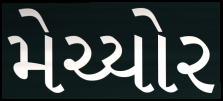
મેચ્યોર